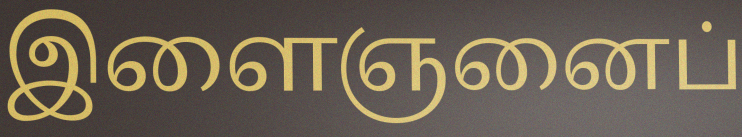
இளைஞனைப்